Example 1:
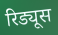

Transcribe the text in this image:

रिड्यूस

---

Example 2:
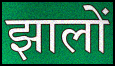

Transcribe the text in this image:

झालों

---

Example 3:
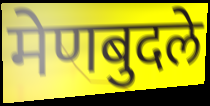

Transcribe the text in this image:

मेणबुदले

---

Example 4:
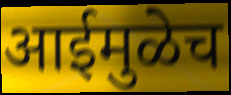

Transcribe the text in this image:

आईमुळेच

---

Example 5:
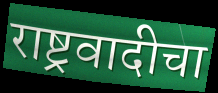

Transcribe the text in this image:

राष्ट्रवादीचा